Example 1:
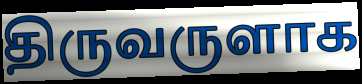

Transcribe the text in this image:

திருவருளாக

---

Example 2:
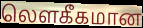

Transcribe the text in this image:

லெளகீகமான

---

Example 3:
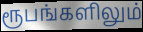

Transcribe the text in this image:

ரூபங்களிலும்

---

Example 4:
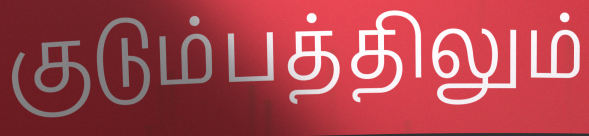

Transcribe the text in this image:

குடும்பத்திலும்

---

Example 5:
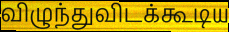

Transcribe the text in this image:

விழுந்துவிடக்கூடிய